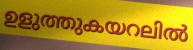
ഉളുത്തുകയറലിൽ